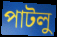
পাটলু